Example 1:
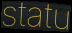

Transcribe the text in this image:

statu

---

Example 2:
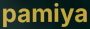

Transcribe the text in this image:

pamiya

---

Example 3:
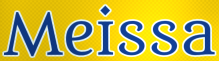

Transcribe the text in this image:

Meissa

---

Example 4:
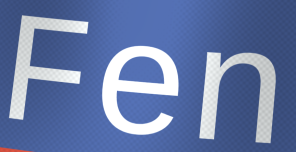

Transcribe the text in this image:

Fen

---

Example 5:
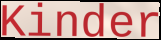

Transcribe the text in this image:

Kinder